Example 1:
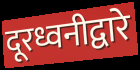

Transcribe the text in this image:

दूरध्वनीद्वारे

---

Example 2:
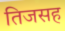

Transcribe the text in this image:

तिजसह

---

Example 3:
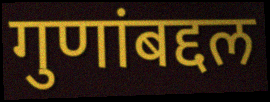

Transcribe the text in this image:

गुणांबद्दल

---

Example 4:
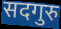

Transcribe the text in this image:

सदगुरु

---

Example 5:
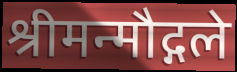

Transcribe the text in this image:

श्रीमन्मौद्गले